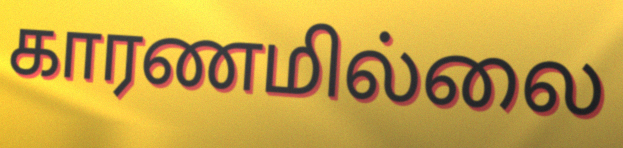
காரணமில்லை